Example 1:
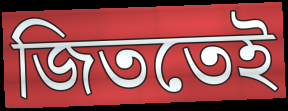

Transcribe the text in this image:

জিততেই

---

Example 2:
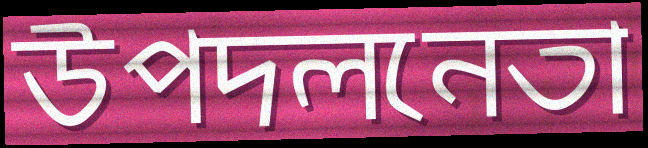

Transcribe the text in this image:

উপদলনেতা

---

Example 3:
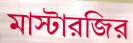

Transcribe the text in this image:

মাস্টারজির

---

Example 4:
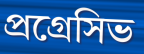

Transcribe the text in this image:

প্রগ্রেসিভ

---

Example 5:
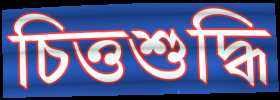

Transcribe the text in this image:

চিত্তশুদ্ধি